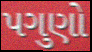
પગુણો